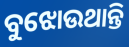
ବୁଝୋଉଥାନ୍ତି